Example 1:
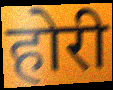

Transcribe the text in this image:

होरी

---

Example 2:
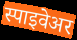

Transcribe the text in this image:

स्पाइवेअर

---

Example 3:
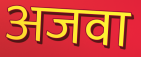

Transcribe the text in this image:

अजवा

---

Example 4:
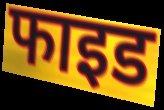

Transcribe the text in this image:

फाइड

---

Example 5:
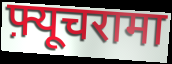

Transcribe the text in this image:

फ़्यूचरामा